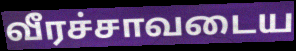
வீரச்சாவடைய